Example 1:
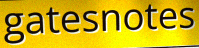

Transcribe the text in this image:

gatesnotes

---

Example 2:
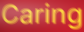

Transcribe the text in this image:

Caring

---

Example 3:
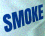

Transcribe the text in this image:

SMOKE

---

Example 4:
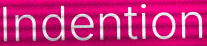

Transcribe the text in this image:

Indention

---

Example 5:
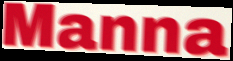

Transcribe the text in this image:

Manna